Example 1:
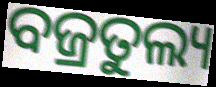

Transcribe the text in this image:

ବଜ୍ରତୁଲ୍ୟ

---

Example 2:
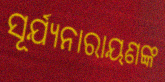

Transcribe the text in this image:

ସୂର୍ଯ୍ୟନାରାୟଣଙ୍କ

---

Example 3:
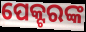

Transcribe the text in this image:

ପେକ୍ଟରଙ୍କ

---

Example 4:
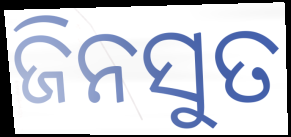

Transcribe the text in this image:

ଜିନସୁତ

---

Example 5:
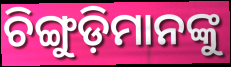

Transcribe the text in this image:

ଚିଙ୍ଗୁଡ଼ିମାନଙ୍କୁ